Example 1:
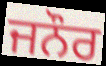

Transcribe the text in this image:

ਜਨੌਰ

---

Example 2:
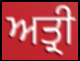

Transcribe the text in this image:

ਅਤ੍ਰੀ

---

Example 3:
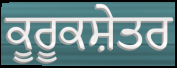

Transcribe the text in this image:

ਕੂਰੂਕਸ਼ੇਤਰ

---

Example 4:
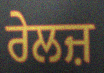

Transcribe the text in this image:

ਰੇਲਜ਼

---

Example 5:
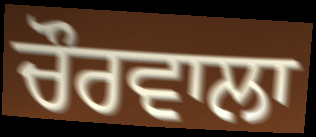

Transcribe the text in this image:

ਚੌਰਵਾਲਾ